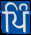
ਪਿੰ